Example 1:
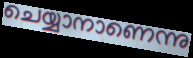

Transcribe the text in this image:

ചെയ്യാനാണെന്നു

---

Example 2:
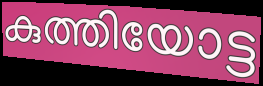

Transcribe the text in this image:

കുത്തിയോട്ട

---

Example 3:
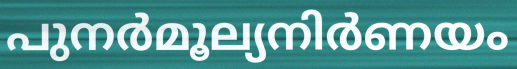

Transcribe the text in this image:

പുനർമൂല്യനിർണയം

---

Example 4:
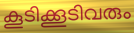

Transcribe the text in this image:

കൂടിക്കൂടിവരും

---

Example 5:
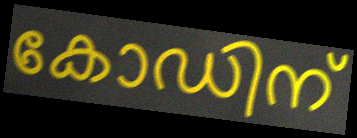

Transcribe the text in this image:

കോഡിന്